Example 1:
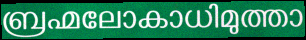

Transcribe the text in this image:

ബ്രഹ്മലോകാധിമുത്താ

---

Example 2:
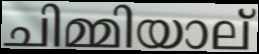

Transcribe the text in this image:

ചിമ്മിയാല്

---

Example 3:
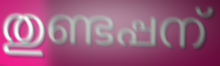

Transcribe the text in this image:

തുണ്ടപ്പന്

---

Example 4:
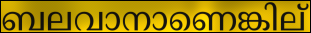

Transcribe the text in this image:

ബലവാനാണെങ്കില്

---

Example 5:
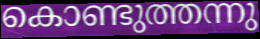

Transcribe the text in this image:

കൊണ്ടുത്തന്നു